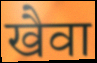
खैवा